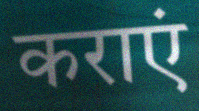
कराएं